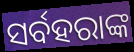
ସର୍ବହରାଙ୍କ